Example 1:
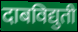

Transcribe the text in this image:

दाबविद्युती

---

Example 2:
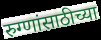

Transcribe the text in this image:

रुग्णांसाठीच्या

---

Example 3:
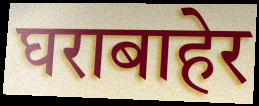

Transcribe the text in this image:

घराबाहेर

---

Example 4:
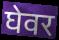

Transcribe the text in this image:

घेवर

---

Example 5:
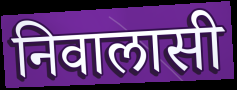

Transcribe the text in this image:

निवालासी